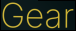
Gear